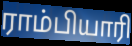
ராம்பியாரி